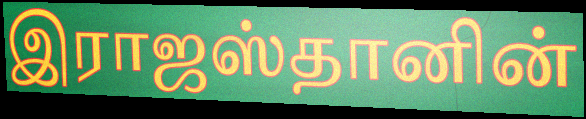
இராஜஸ்தானின்